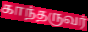
காந்தருவர்